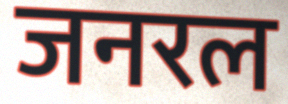
जनरल